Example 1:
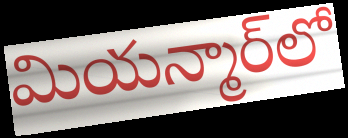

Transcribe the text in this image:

మియన్మార్‌లో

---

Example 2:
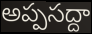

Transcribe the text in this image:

అప్పసద్దా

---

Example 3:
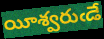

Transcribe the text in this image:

యీశ్వరుఁడే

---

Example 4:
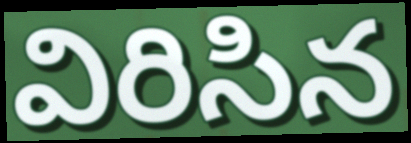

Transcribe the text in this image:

విరిసిన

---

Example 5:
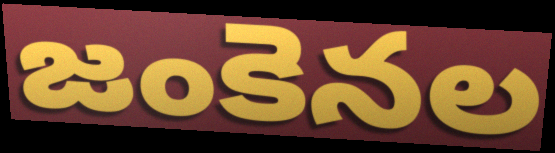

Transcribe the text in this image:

జంకెనల